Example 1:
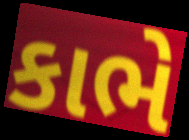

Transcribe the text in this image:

કાભે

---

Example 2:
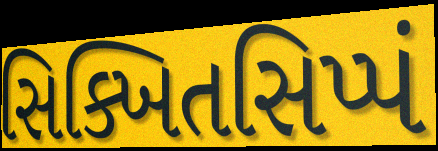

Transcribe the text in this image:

સિક્ખિતસિપ્પં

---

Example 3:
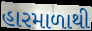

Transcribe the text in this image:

હારમાળાથી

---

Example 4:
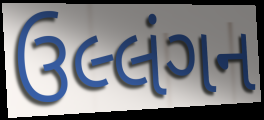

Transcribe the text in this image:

ઉલ્લંગન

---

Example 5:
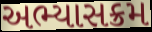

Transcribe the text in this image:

અભ્યાસક્રમ